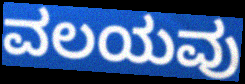
ವಲಯವು